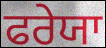
ਫਰੇਯਾ